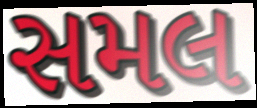
સમલ